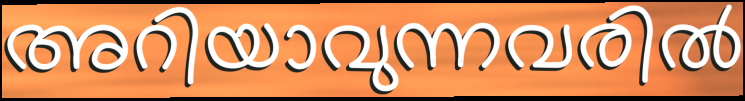
അറിയാവുന്നവരിൽ